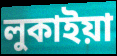
লুকাইয়া